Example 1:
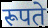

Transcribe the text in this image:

रूपते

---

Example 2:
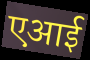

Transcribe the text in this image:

एआई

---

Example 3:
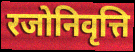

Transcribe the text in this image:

रजोनिवृत्ति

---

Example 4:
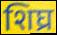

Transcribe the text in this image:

शिघ्र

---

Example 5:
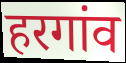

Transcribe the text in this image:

हरगांव